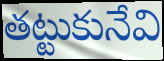
తట్టుకునేవి